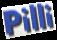
Pilli